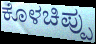
ಕೊಳಚಿಪ್ಪು